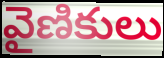
వైణికులు